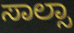
ಸಾಲ್ಸಾ